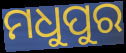
ମଧୁପୁର